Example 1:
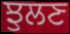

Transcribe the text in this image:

ਝੁਲਣ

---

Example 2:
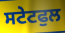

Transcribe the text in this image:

ਸਟੇਟਫੁਲ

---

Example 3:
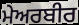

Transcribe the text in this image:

ਮੇਅਰਬੀਰ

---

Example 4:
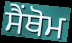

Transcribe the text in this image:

ਸੈਂਥੋਮ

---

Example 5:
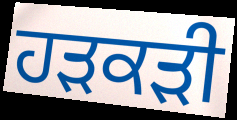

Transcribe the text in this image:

ਹੜਕੜੀ